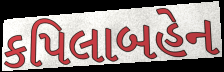
કપિલાબહેન